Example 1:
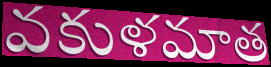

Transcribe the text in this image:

వకుళమాత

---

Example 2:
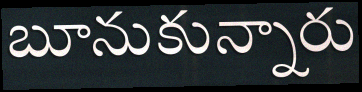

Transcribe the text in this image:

బూనుకున్నారు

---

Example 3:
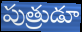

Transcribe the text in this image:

పుత్రుడూ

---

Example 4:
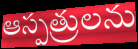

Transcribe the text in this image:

ఆస్పత్రులను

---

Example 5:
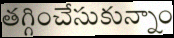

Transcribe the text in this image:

తగ్గించేసుకున్నాం